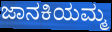
ಜಾನಕಿಯಮ್ಮ